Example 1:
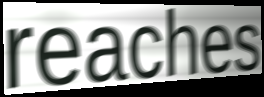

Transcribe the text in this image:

reaches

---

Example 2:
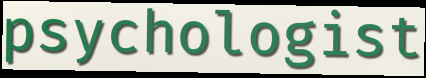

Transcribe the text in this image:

psychologist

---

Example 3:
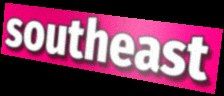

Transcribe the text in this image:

southeast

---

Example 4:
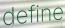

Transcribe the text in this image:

define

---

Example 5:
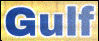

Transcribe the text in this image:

Gulf